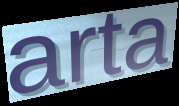
arta